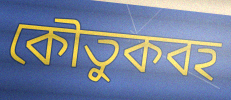
কৌতুকবহ